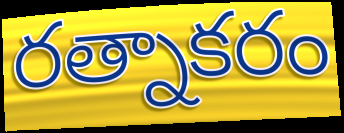
రత్నాకరం